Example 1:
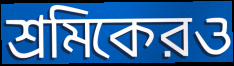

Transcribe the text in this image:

শ্রমিকেরও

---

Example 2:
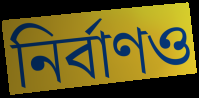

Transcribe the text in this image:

নির্বাণও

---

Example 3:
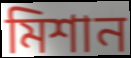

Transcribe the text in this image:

মিশান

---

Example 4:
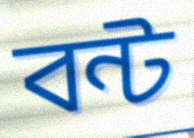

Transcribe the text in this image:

বন্ট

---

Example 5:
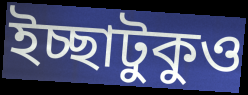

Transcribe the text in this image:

ইচ্ছাটুকুও